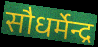
सौधर्मेन्द्र